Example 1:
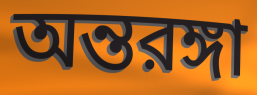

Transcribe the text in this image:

অন্তরঙ্গা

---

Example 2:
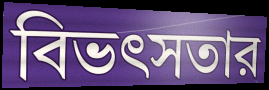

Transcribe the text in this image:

বিভৎসতার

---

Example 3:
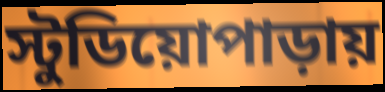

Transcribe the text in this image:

স্টুডিয়োপাড়ায়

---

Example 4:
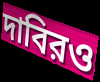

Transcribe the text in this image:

দাবিরও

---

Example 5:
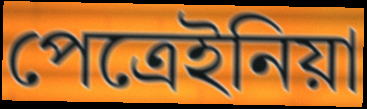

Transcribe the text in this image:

পেত্রেইনিয়া